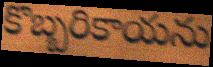
కొబ్బరికాయను